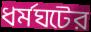
ধর্মঘটের